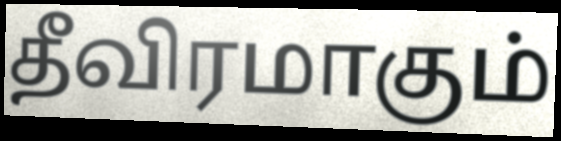
தீவிரமாகும்